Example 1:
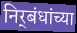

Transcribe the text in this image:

निर्बंधांच्या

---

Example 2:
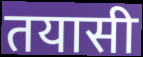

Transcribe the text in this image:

तयासी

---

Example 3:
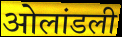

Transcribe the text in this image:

ओलांडली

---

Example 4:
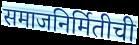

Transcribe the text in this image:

समाजनिर्मितीची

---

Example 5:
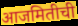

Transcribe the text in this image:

आजमितीची